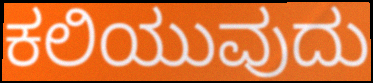
ಕಲಿಯುವುದು